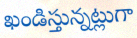
ఖండిస్తున్నట్లుగా